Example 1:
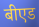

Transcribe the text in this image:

बीएड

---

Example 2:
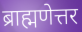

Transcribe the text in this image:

ब्राह्मणेत्तर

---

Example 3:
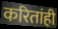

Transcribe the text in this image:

करितांही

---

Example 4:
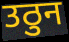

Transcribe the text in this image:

उठुन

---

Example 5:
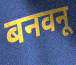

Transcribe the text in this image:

बनवनू